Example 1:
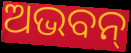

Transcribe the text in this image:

ଅଭବନ୍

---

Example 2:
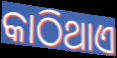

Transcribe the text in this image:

କାଠିଥାଏ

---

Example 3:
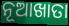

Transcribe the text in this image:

ନୂଆଖାତା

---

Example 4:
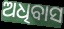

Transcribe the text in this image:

ଅଧିବାସ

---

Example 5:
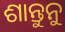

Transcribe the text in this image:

ଶାନ୍ତୁନୁ